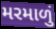
મરમાળું